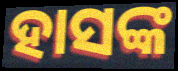
ହାସଙ୍କ